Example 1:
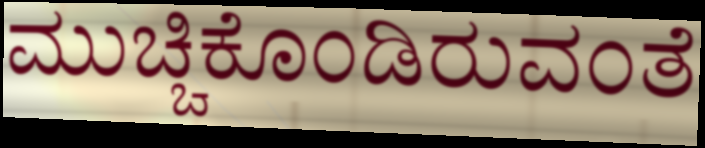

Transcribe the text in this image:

ಮುಚ್ಚಿಕೊಂಡಿರುವಂತೆ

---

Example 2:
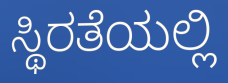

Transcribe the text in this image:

ಸ್ಥಿರತೆಯಲ್ಲಿ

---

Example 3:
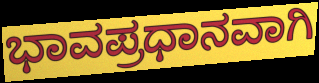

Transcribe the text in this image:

ಭಾವಪ್ರಧಾನವಾಗಿ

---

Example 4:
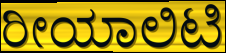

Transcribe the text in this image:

ರೀಯಾಲಿಟಿ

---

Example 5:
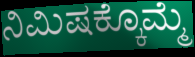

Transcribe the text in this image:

ನಿಮಿಷಕ್ಕೊಮ್ಮೆ